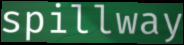
spillway